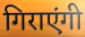
गिराएंगी